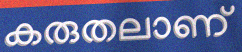
കരുതലാണ്